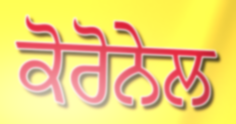
ਕੋਰੋਨੇਲ